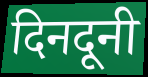
दिनदूनी